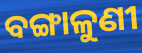
ବଙ୍ଗାଳୁଣୀ